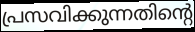
പ്രസവിക്കുന്നതിന്റെ